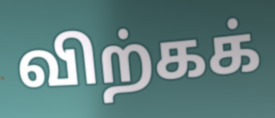
விற்கக்